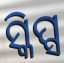
ସ୍କିପ୍ସ